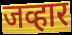
जव्हार